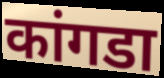
कांगडा